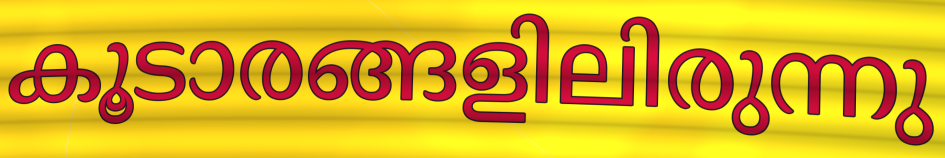
കൂടാരങ്ങളിലിരുന്നു